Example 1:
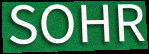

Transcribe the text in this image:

SOHR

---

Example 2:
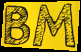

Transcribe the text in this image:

BM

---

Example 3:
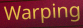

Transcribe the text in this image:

Warping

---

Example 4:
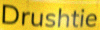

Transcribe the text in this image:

Drushtie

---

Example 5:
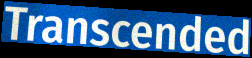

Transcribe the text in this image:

Transcended